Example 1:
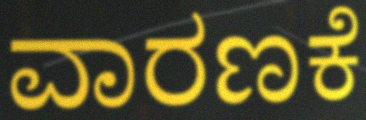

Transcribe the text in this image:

ವಾರಣಕೆ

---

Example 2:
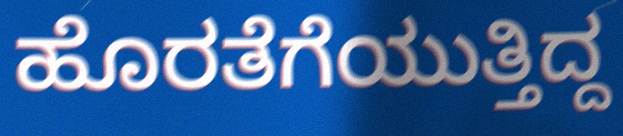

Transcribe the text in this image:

ಹೊರತೆಗೆಯುತ್ತಿದ್ದ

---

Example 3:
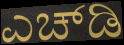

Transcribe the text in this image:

ಎಚ್‍ಡಿ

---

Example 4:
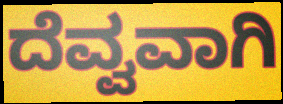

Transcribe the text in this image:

ದೆವ್ವವಾಗಿ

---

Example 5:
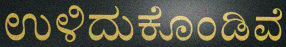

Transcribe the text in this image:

ಉಳಿದುಕೊಂಡಿವೆ